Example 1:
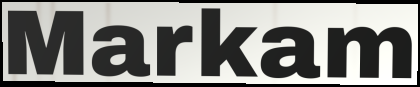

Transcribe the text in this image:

Markam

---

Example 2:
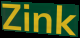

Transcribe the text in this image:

Zink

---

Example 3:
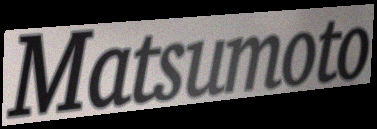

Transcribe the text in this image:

Matsumoto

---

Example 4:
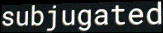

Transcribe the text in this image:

subjugated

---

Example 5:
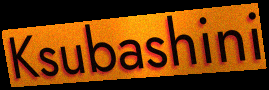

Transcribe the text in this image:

Ksubashini